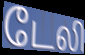
டேலி